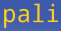
pali